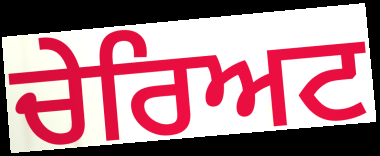
ਚੇਰਿਅਟ